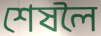
শেষলৈ